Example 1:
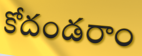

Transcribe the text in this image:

కోదండరాం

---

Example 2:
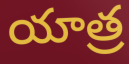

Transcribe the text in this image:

యాత్ర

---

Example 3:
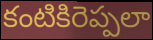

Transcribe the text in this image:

కంటికిరెప్పలా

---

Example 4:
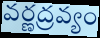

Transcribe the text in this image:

వర్ణద్రవ్యం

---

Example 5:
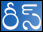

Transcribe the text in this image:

రీస్